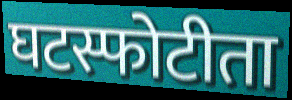
घटस्फोटीता